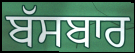
ਬੱਸਬਾਰ